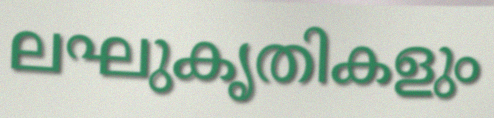
ലഘുകൃതികളും